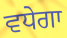
ਵਧੇਗਾ